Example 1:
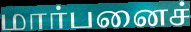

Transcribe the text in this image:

மார்பனைச்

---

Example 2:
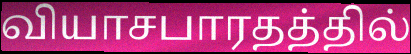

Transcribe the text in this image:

வியாசபாரதத்தில்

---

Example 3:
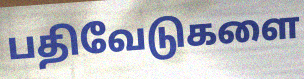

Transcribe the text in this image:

பதிவேடுகளை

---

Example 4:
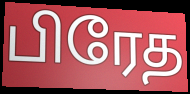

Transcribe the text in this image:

பிரேத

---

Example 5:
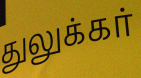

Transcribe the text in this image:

துலுக்கர்